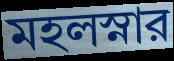
মহলস্নার